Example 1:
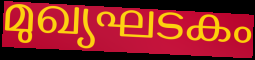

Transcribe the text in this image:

മുഖ്യഘടകം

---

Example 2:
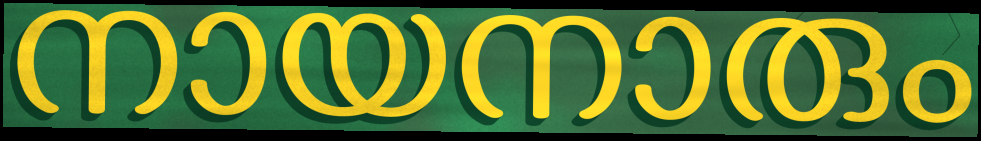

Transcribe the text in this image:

നായനാരും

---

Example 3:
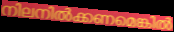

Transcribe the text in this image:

നിലനിൽക്കണമെങ്കിൽ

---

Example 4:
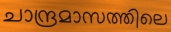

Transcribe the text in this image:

ചാന്ദ്രമാസത്തിലെ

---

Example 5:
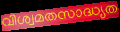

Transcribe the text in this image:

വിശ്വമതസാദ്ധ്യത